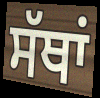
ਸੱਥਾਂ